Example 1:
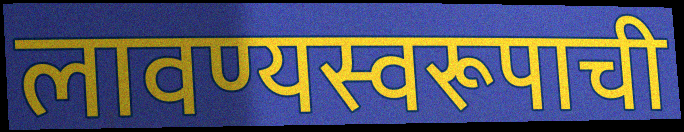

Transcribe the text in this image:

लावण्यस्वरूपाची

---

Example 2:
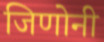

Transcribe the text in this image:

जिणोनी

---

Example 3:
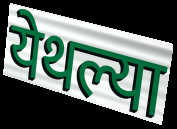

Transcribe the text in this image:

येथल्या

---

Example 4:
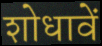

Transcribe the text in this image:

शोधावें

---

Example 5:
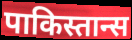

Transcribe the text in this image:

पाकिस्तान्स